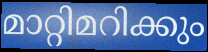
മാറ്റിമറിക്കും